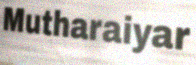
Mutharaiyar